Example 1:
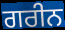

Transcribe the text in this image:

ਗਰੀਨ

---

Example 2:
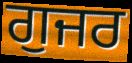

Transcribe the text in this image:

ਗੁਜਰ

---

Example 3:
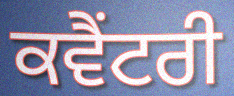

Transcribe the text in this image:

ਕਵੈਂਟਰੀ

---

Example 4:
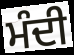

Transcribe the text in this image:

ਮੰਦੀ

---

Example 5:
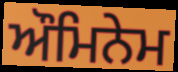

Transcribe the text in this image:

ਔਮਿਨੇਮ